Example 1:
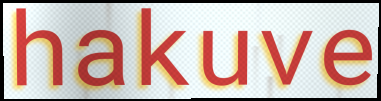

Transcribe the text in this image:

hakuve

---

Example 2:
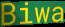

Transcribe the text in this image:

Biwa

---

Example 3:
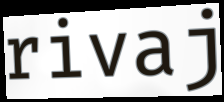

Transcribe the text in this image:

rivaj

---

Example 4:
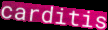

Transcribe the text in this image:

carditis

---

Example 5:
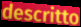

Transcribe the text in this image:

descritto